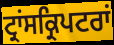
ਟ੍ਰਾਂਸਕ੍ਰਿਪਟਰਾਂ